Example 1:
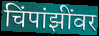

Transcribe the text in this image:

चिंपांझींवर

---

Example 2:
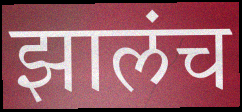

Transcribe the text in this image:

झालंच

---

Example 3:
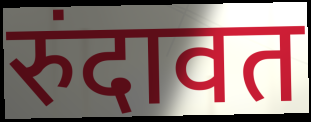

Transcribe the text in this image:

रुंदावत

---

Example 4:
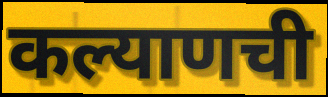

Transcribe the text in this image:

कल्याणची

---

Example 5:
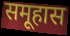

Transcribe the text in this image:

समूहास